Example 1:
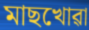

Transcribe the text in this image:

মাছখোৱা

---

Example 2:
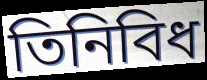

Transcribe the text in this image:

তিনিবিধ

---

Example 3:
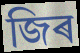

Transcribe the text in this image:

জিৰ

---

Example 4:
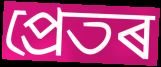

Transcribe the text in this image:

প্ৰেতৰ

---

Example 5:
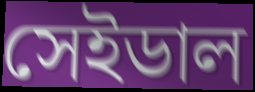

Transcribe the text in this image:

সেইডাল